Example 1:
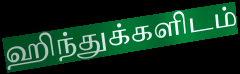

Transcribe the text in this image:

ஹிந்துக்களிடம்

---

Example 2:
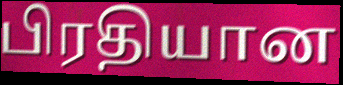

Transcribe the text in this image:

பிரதியான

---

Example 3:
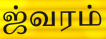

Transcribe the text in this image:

ஜ்வரம்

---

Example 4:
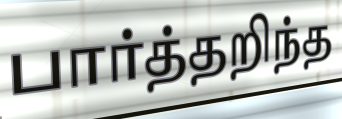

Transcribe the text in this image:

பார்த்தறிந்த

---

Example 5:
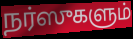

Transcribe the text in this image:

நர்ஸுகளும்